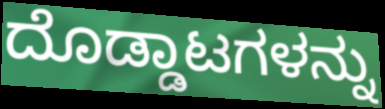
ದೊಡ್ಡಾಟಗಳನ್ನು